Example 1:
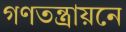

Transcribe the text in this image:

গণতন্ত্রায়নে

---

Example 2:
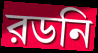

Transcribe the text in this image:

রডনি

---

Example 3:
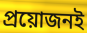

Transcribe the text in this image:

প্রয়োজনই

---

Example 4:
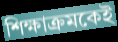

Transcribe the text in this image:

শিক্ষাক্রমকেই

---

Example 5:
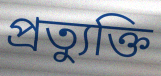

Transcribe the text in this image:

প্রত্যুক্তি